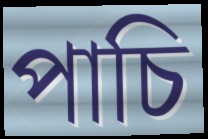
পাচি